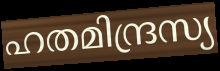
ഹതമിന്ദ്രസ്യ